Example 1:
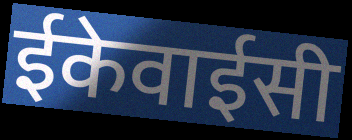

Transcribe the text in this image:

ईकेवाईसी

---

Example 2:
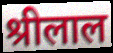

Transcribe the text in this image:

श्रीलाल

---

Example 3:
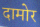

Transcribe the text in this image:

दामोर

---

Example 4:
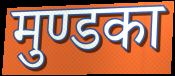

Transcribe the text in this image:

मुण्डका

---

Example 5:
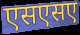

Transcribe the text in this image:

एसएसए